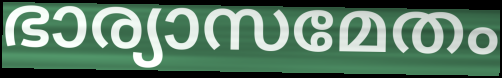
ഭാര്യാസമേതം